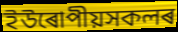
ইউৰোপীয়সকলৰ